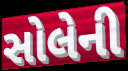
સોલેની